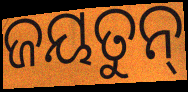
ଜୟତୁନ୍